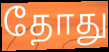
தோது